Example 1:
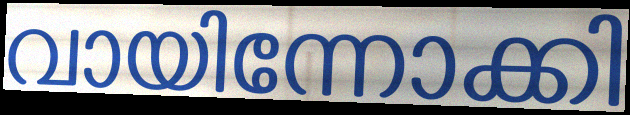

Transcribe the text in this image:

വായിന്നോക്കി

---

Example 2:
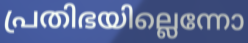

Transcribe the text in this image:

പ്രതിഭയില്ലെന്നോ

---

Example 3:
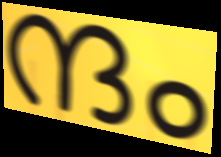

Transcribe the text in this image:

ന്ദം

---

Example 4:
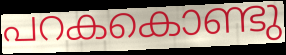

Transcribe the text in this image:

പറകകൊണ്ടു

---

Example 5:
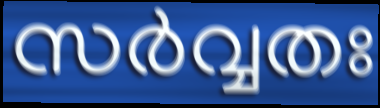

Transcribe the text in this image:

സർവ്വതഃ